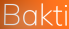
Bakti